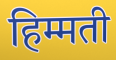
हिम्मती